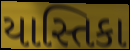
યાસ્તિકા